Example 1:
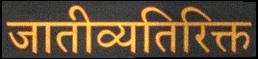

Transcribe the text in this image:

जातीव्यतिरिक्त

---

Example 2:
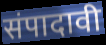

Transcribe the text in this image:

संपादावी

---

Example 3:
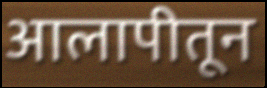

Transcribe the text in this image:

आलापीतून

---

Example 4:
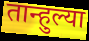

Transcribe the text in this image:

तान्हुल्या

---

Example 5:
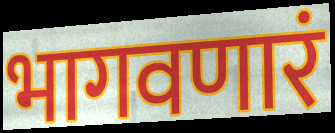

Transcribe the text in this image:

भागवणारं